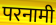
परनामी